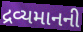
દ્રવ્યમાનની